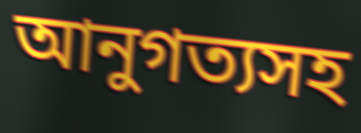
আনুগত্যসহ